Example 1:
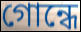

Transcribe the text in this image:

গোন্ধে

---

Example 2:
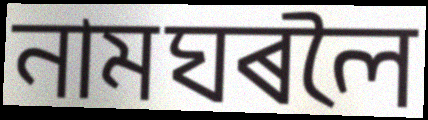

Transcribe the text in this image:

নামঘৰলৈ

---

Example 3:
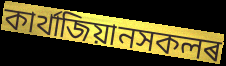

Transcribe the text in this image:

কাৰ্থাজিয়ানসকলৰ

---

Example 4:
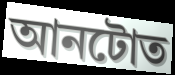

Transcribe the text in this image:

আনটোত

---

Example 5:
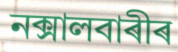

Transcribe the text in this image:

নক্সালবাৰীৰ